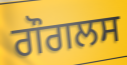
ਗੌਗਲਸ